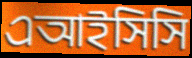
এআইসিসি